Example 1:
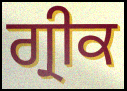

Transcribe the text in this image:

ਗ੍ਰੀਕ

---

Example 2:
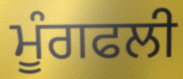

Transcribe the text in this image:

ਮੂੰਗਫਲੀ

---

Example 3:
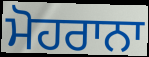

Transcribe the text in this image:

ਮੋਹਰਾਨਾ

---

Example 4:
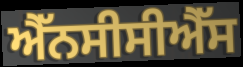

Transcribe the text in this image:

ਐੱਨਸੀਸੀਐੱਸ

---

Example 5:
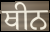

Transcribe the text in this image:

ਥੀਨ